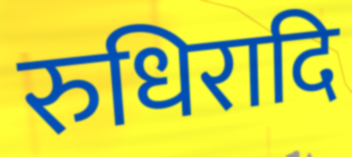
रुधिरादि